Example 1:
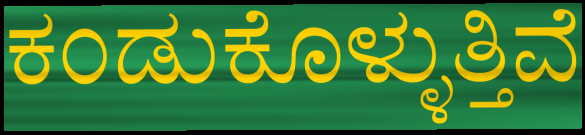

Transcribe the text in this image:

ಕಂಡುಕೊಳ್ಳುತ್ತಿವೆ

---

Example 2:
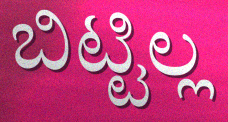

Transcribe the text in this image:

ಬಿಟ್ಟಿಲ್ಲ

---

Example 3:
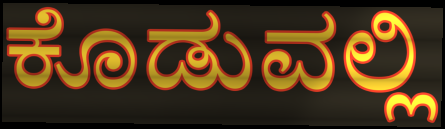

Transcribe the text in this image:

ಕೊಡುವಲ್ಲಿ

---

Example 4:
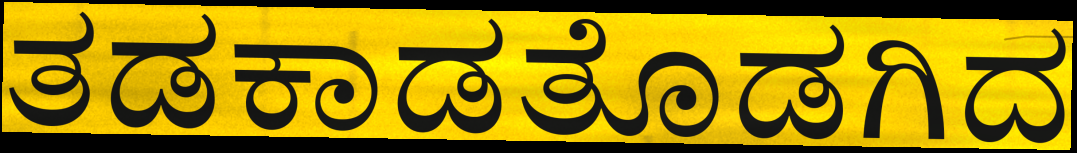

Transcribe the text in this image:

ತಡಕಾಡತೊಡಗಿದ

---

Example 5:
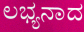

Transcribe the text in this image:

ಲಭ್ಯನಾದ